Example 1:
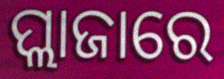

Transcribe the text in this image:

ପ୍ଲାଜାରେ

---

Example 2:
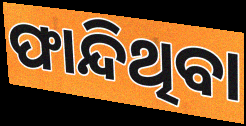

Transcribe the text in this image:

ଫାନ୍ଦିଥିବା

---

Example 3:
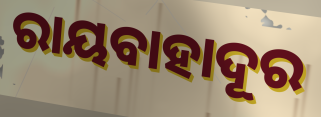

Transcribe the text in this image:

ରାୟବାହାଦୂର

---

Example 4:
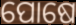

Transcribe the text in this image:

ପୋଷେ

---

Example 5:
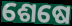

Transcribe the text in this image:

ଶେଷେ